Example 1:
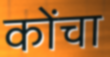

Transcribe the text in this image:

कोंचा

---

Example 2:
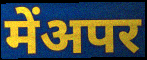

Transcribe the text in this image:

मेंअपर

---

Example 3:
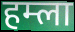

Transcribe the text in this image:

हम्ला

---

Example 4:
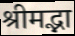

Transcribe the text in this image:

श्रीमद्भा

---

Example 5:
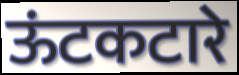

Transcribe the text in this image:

ऊंटकटारे